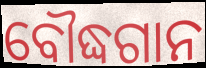
ବୌଦ୍ଧଗାନ